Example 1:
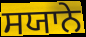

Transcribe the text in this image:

ਸਯਾਨੇ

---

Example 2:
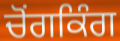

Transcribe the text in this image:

ਚੋਂਗਕਿੰਗ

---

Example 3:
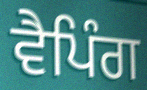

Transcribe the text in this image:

ਵੈਪਿੰਗ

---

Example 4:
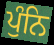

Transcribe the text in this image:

ਪੁੰਨਿ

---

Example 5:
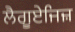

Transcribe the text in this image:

ਲੈਗੂਏਜਿਜ਼